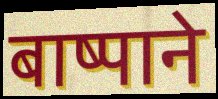
बाष्पाने